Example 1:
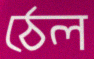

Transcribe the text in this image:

ঠেল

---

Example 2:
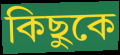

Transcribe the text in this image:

কিছুকে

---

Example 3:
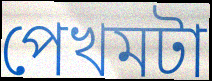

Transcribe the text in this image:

পেখমটা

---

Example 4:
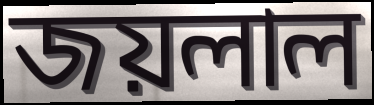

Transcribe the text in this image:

জয়লাল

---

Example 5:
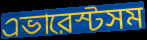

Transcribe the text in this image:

এভারেস্টসম